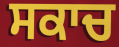
ਸਕਾਚ